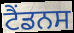
ਟੈਂਡਨਸ